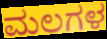
ಮಲಗಳ